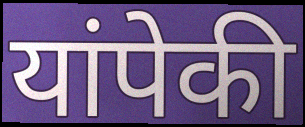
यांपेकी